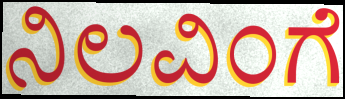
ನಿಲವಿಂಗೆ